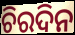
ଚିରଦିନ